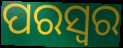
ପରସ୍ୱର